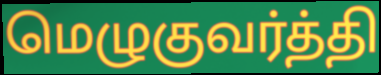
மெழுகுவர்த்தி